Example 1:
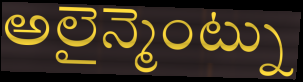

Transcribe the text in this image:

అలైన్మెంట్ను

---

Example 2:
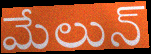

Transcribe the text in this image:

మేలున్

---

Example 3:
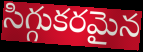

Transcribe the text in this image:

సిగ్గుకరమైన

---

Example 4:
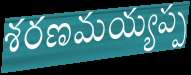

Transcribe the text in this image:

శరణమయ్యప్ప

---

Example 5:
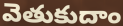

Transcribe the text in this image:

వెతుకుదాం